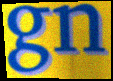
gn